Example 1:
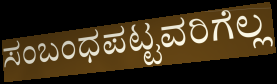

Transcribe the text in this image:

ಸಂಬಂಧಪಟ್ಟವರಿಗೆಲ್ಲ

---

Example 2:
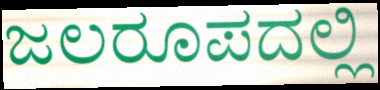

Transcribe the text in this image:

ಜಲರೂಪದಲ್ಲಿ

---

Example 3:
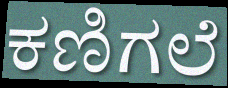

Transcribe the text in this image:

ಕಣಿಗಲೆ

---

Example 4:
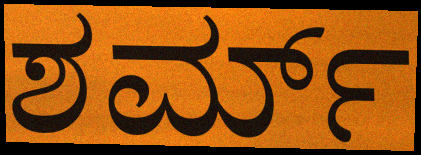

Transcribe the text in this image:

ಶರ್ಮ್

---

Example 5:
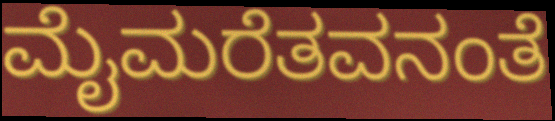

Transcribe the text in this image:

ಮೈಮರೆತವನಂತೆ